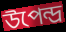
উপেন্দ্ৰ